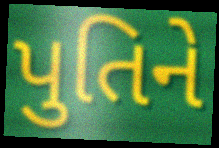
પુતિને